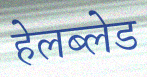
हेलब्लेड